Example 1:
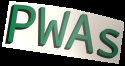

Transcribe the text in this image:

PWAs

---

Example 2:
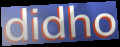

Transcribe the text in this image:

didho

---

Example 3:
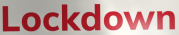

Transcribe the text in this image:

Lockdown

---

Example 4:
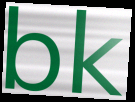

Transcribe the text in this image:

bk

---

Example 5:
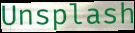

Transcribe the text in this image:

Unsplash